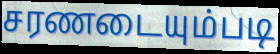
சரணடையும்படி